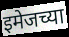
इमेजच्या